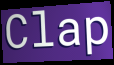
Clap